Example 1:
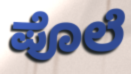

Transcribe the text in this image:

ಪೊಲೆ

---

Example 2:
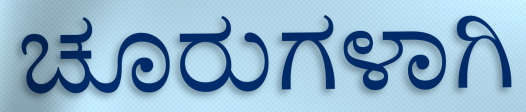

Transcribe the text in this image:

ಚೂರುಗಳಾಗಿ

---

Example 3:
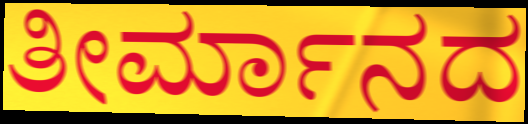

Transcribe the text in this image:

ತೀರ್ಮಾನದ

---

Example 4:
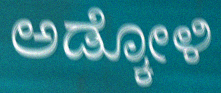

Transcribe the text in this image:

ಅಡ್ಕೋಳಿ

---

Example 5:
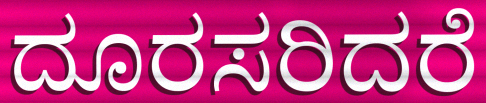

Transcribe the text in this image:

ದೂರಸರಿದರೆ